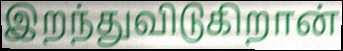
இறந்துவிடுகிறான்